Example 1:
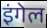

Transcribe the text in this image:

इंगेल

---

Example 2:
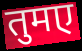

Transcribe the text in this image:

तुमए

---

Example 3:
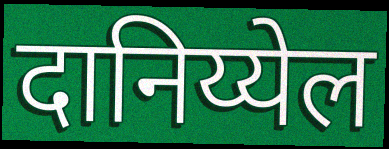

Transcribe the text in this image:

दानिय्येल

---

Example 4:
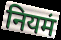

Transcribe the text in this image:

नियमं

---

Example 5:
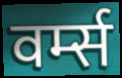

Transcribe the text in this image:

वर्म्स